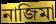
নাজিমা